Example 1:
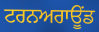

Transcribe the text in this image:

ਟਰਨਅਰਾਊਂਡ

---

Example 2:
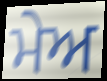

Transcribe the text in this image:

ਮੇਅ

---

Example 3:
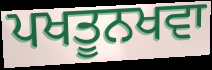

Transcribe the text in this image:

ਪਖਤੂਨਖਵਾ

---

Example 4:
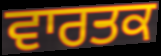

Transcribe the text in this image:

ਵਾਰਤਕ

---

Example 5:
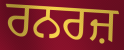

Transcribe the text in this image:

ਰਨਰਜ਼